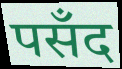
पसँद